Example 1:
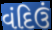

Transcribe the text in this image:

વંદિઉં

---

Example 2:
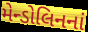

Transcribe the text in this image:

મેન્ડોલિનનાં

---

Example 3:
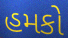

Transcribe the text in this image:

હમકો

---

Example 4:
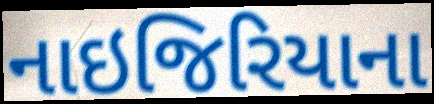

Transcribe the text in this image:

નાઇજિરિયાના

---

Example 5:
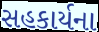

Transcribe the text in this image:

સહકાર્યના